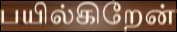
பயில்கிறேன்